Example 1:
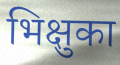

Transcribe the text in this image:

भिक्षुका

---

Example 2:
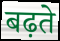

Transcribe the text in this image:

बढ़ते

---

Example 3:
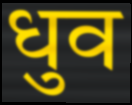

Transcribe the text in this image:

धुव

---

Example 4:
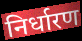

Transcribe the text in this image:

निर्धारण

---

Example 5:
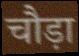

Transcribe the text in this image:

चौड़ा